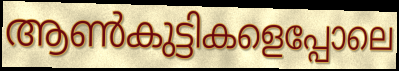
ആൺകുട്ടികളെപ്പോലെ